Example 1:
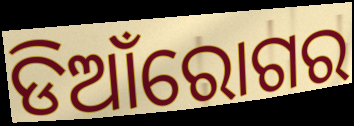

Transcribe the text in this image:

ଡିଆଁରୋଗର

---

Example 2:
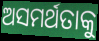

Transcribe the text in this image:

ଅସମର୍ଥତାକୁ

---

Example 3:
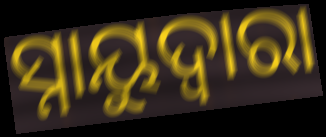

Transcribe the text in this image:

ସ୍ନାୟୁଦ୍ଵାରା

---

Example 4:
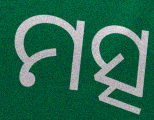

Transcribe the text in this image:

ମତ୍ସ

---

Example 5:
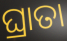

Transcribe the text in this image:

ଘ୍ରାତା